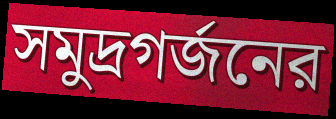
সমুদ্রগর্জনের